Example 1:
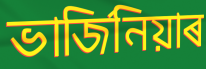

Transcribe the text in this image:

ভাৰ্জিনিয়াৰ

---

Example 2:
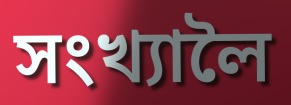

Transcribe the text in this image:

সংখ্যালৈ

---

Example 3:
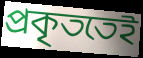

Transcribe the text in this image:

প্ৰকৃততেই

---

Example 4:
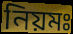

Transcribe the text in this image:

নিয়মঃ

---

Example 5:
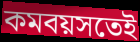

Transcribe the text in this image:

কমবয়সতেই